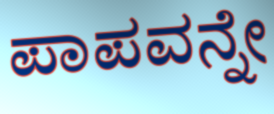
ಪಾಪವನ್ನೇ